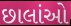
છાલાંઓ